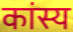
कांस्य